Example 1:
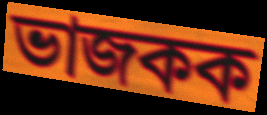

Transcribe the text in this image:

ভাজকক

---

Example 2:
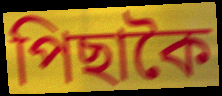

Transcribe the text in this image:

পিছাকৈ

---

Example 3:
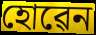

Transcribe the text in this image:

হোৱেন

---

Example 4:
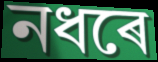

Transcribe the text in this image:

নধৰে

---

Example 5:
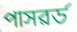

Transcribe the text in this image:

পাসৱৰ্ড